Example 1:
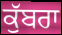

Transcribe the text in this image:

ਕੁੱਬਰਾ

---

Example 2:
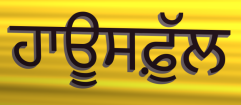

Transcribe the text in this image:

ਹਾਊਸਫ਼ੁੱਲ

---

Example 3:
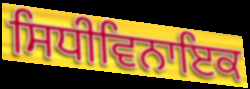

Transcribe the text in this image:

ਸਿਧੀਵਿਨਾਇਕ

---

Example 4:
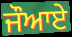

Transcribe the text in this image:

ਜੌਆਏ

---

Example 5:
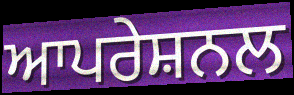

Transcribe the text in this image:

ਆਪਰੇਸ਼ਨਲ